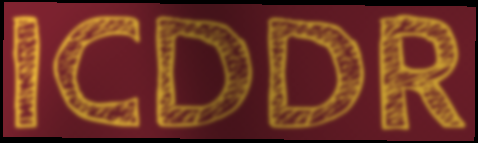
ICDDR